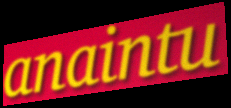
anaintu